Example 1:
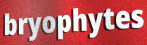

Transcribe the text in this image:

bryophytes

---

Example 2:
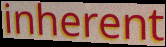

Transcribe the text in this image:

inherent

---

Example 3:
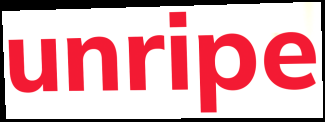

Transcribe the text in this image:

unripe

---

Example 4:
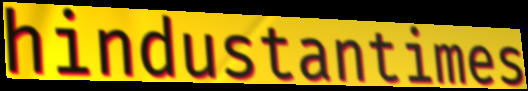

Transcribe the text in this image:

hindustantimes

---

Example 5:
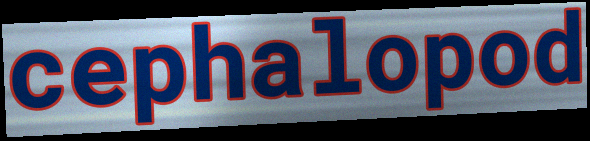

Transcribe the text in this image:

cephalopod